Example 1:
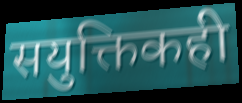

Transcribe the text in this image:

सयुक्तिकही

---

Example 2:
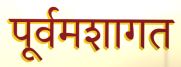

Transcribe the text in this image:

पूर्वमशागत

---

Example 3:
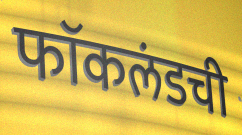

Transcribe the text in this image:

फॉकलंडची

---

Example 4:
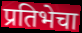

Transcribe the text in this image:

प्रतिभेचा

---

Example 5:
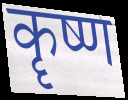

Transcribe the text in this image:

कॄष्ण